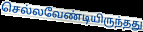
செல்லவேண்டியிருந்தது